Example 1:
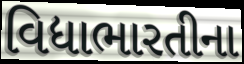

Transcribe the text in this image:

વિદ્યાભારતીના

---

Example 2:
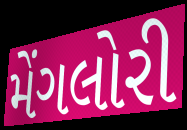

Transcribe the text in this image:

મેંગલોરી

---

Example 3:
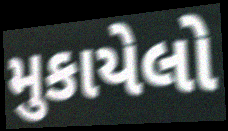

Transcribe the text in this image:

મુકાયેલો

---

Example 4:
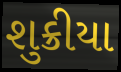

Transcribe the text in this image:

શુક્રીયા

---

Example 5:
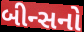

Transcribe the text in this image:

બીન્સનો